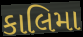
કાલિમા